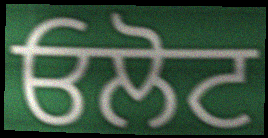
ਓਲੋਟ